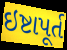
ઇષ્ટાપૂર્ત